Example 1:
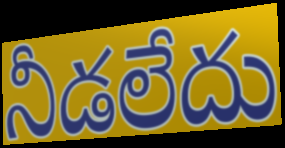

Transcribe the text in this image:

నీడలేదు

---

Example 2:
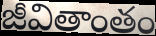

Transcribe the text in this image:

జీవితాంతం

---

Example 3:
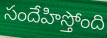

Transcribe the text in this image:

సందేహిస్తోంది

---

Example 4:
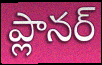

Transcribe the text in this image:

ప్లానర్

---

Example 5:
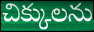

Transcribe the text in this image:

చిక్కులను